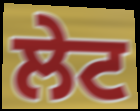
ਲੇਟ